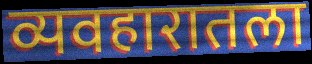
व्यवहारातला